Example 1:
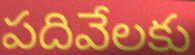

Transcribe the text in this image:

పదివేలకు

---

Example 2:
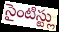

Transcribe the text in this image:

సైంటిస్ట్లు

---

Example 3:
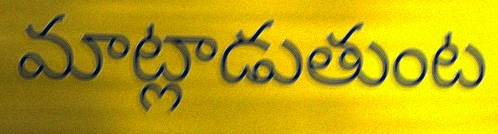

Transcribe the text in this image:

మాట్లాడుతుంట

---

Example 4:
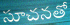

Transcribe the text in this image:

సూచనతో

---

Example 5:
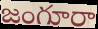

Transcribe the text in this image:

జంగూరా